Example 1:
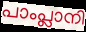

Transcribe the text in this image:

പാംപ്ലാനി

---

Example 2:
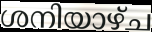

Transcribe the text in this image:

ശനിയാഴ്ച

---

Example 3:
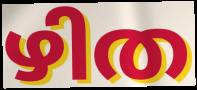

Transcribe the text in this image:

ഴിത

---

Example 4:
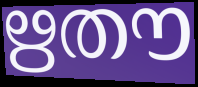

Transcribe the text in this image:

ഋതൗ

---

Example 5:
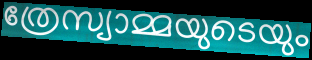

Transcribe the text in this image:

ത്രേസ്യാമ്മയുടെയും